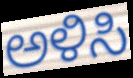
ಅಳಿಸಿ